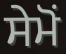
ਸੇਮੋਂ